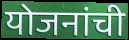
योजनांची